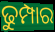
ଢୁମ୍ପାର